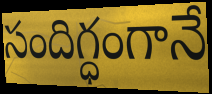
సందిగ్ధంగానే